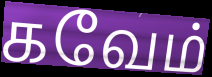
கவேம்